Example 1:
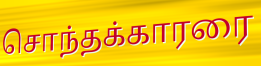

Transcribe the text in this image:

சொந்தக்காரரை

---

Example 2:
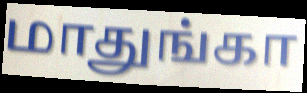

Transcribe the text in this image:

மாதுங்கா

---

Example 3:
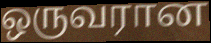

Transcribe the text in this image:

ஒருவரான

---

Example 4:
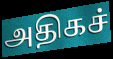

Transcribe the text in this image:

அதிகச்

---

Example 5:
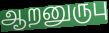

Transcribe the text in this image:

ஆறனுருபு